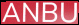
ANBU